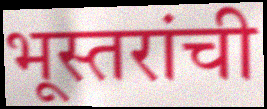
भूस्तरांची